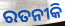
ରତନୀକି